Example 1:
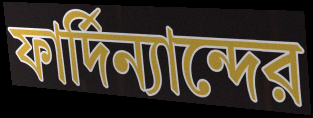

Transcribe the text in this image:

ফার্দিন্যান্দের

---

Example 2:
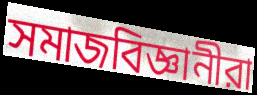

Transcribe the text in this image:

সমাজবিজ্ঞানীরা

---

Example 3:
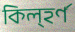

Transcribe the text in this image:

কিল্‌হর্ণ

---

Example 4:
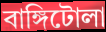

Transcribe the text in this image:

বাঙ্গিটোলা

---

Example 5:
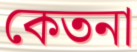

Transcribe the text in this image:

কেতনা